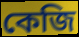
কেজি